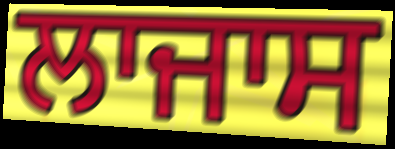
ਲਾਜਾਸ